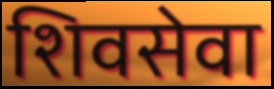
शिवसेवा